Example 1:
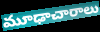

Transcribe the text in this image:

మూఢాచారాలు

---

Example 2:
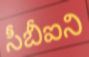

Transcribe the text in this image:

సీబీఐని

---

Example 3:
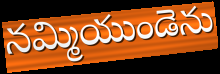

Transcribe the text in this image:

నమ్మియుండెను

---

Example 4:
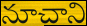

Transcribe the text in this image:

నూచాని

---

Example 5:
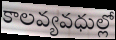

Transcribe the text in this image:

కాలవ్యవధుల్లో